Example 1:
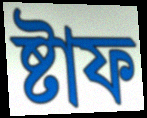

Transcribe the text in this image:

ষ্টাফ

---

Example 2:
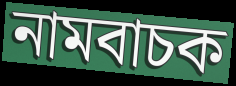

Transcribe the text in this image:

নামবাচক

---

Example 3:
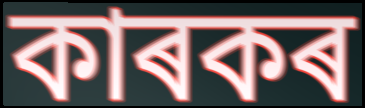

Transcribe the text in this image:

কাৰকৰ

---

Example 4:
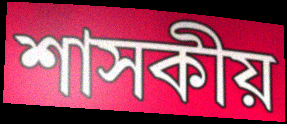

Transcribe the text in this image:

শাসকীয়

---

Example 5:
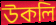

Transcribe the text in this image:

উকলি